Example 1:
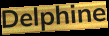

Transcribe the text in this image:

Delphine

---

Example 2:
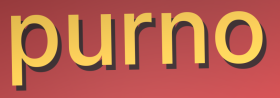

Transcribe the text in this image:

purno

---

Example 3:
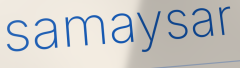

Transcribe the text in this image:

samaysar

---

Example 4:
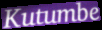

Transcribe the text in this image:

Kutumbe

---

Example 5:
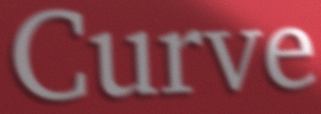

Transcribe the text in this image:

Curve